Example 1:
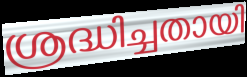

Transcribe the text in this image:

ശ്രദ്ധിച്ചതായി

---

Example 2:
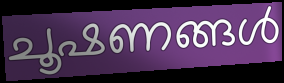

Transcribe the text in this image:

ചൂഷണങ്ങൾ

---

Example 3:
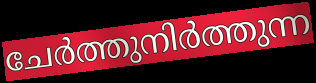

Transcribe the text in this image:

ചേർത്തുനിർത്തുന്ന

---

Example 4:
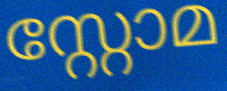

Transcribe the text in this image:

സ്റ്റോമ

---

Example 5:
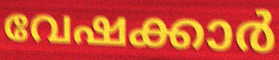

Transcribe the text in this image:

വേഷക്കാർ